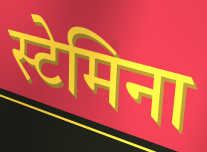
स्टेमिना